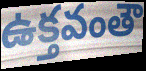
ఉక్తవంతౌ